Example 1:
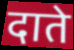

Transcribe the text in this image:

दाते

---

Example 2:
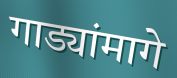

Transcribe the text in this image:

गाड्यांमागे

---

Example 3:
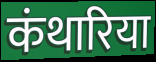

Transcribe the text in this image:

कंथारिया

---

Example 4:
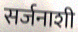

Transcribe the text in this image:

सर्जनाशी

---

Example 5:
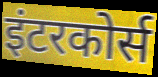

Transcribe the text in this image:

इंटरकोर्स